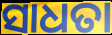
ସାଧତା